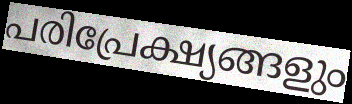
പരിപ്രേക്ഷ്യങ്ങളും